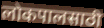
लोकपालसाठी